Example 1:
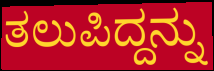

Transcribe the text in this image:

ತಲುಪಿದ್ದನ್ನು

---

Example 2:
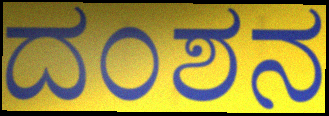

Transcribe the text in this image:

ದಂಶನ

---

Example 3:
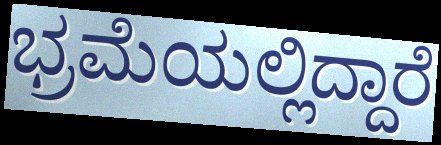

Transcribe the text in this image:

ಭ್ರಮೆಯಲ್ಲಿದ್ದಾರೆ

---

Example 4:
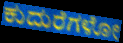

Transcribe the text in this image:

ಕುದುರೆಗಳೋ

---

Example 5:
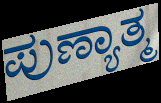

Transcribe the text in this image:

ಪುಣ್ಯಾತ್ಮ